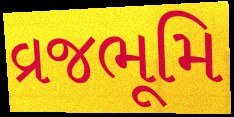
વ્રજભૂમિ